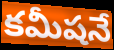
కమీషనే